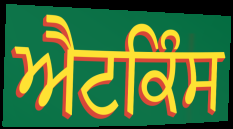
ਐਟਕਿੰਸ